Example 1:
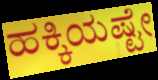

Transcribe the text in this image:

ಹಕ್ಕಿಯಷ್ಟೇ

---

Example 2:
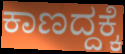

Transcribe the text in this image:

ಕಾಣದ್ದಕ್ಕೆ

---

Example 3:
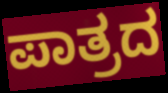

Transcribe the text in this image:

ಪಾತ್ರದ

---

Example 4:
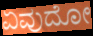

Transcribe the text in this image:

ಏವುದೋ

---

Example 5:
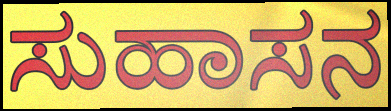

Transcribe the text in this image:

ಸುಹಾಸನ